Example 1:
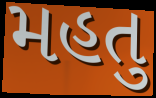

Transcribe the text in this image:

મહતુ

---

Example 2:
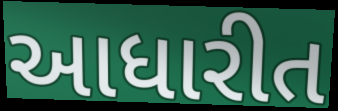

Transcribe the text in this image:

આધારીત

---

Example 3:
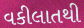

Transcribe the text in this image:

વકીલાતથી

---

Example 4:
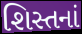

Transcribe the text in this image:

શિસ્તનાં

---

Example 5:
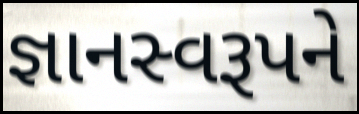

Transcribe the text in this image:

જ્ઞાનસ્વરૂપને